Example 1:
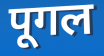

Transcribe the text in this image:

पूगल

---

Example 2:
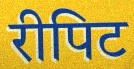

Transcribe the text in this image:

रीपिट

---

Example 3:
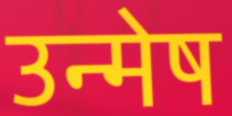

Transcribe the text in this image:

उन्मेष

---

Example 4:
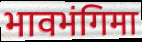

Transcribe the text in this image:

भावभंगिमा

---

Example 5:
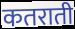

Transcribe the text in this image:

कतराती